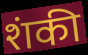
शंकी